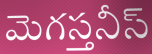
మెగస్తనీస్